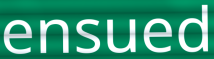
ensued